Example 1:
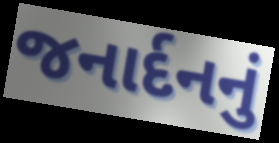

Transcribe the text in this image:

જનાર્દનનું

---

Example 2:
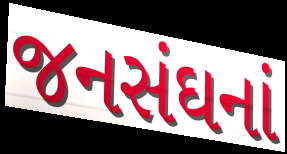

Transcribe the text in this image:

જનસંઘનાં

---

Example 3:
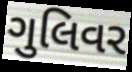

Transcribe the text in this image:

ગુલિવર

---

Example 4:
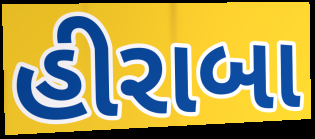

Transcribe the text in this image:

હીરાબા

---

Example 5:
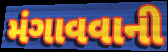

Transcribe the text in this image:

મંગાવવાની